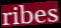
ribes